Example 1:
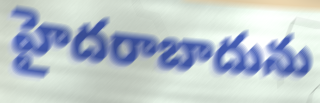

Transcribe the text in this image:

హైదరాబాదును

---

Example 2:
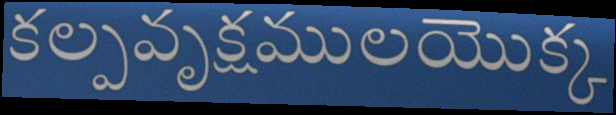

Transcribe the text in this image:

కల్పవృక్షములయొక్క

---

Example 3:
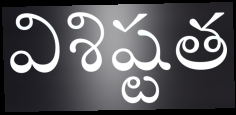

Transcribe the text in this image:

విశిష్టత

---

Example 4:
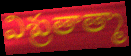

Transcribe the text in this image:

విశ్రుతాత్మా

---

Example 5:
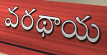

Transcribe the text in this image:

వరథాయ